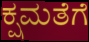
ಕ್ಷಮತೆಗೆ